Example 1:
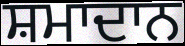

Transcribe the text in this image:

ਸ਼ਮਾਦਾਨ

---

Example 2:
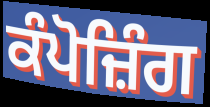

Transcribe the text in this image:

ਕੰਪੋਜ਼ਿੰਗ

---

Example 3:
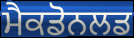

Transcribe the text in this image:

ਮੈਕਡੋਨਲਡ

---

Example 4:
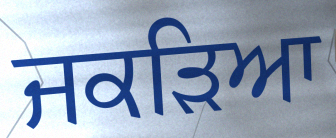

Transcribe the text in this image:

ਜਕੜਿਆ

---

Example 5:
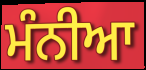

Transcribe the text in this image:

ਮੰਨੀਆ